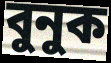
বুনুক